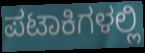
ಪಟಾಕಿಗಳಲ್ಲಿ